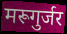
मरूगुर्जर